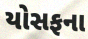
યોસફના